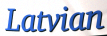
Latvian